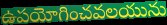
ఉపయోగించవలయును